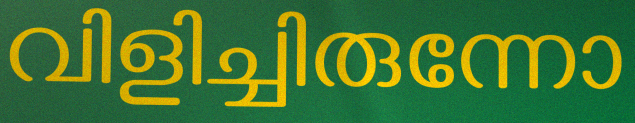
വിളിച്ചിരുന്നോ